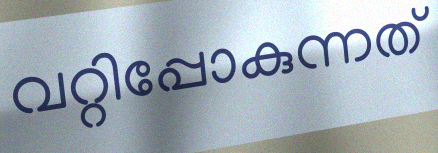
വറ്റിപ്പോകുന്നത്